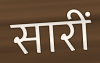
सारीं